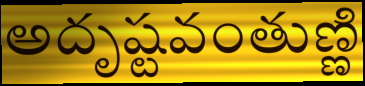
అదృష్టవంతుణ్ణి